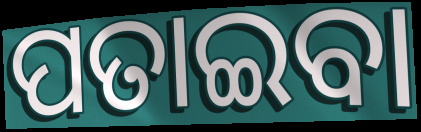
ପତାଇବା